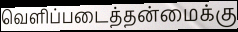
வெளிப்படைத்தன்மைக்கு